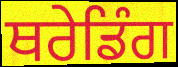
ਥਰੇਡਿੰਗ